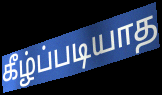
கீழ்ப்படியாத